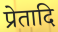
प्रेतादि